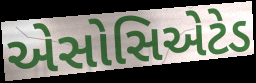
એસોસિએટેડ